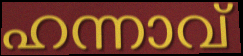
ഹന്നാവ്